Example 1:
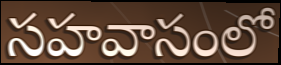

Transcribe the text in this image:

సహవాసంలో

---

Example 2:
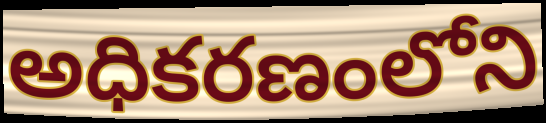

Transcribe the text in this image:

అధికరణంలోని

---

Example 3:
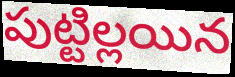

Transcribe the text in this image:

పుట్టిల్లయిన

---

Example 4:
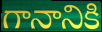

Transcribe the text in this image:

గానానికి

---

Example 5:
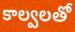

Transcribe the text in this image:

కాల్వలతో